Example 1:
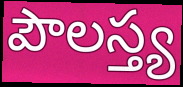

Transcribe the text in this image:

పౌలస్త్య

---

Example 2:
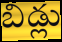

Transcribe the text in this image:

బిడ్లు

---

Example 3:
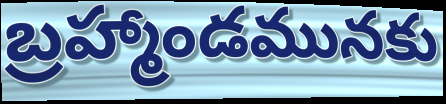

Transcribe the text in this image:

బ్రహ్మాండమునకు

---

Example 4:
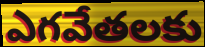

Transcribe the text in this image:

ఎగవేతలకు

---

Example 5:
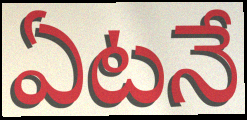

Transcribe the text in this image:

ఏటనే